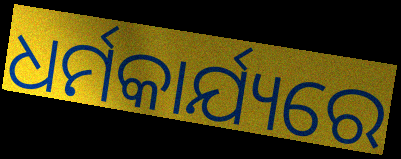
ଧର୍ମକାର୍ଯ୍ୟରେ